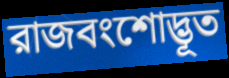
রাজবংশোদ্ভূত